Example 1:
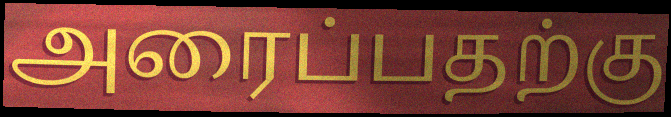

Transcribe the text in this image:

அரைப்பதற்கு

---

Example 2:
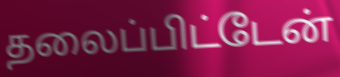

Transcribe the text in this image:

தலைப்பிட்டேன்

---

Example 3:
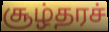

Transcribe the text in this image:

சூழ்தரச்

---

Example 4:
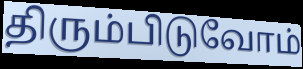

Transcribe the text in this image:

திரும்பிடுவோம்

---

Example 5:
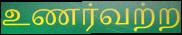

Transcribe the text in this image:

உணர்வற்ற